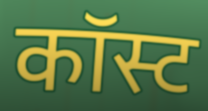
कॉस्ट